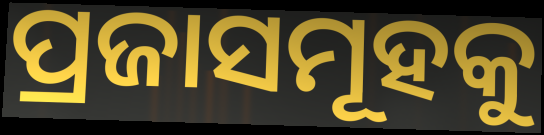
ପ୍ରଜାସମୂହକୁ